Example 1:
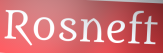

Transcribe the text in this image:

Rosneft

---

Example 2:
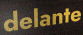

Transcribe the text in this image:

delante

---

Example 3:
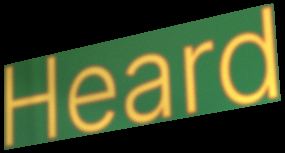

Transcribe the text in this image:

Heard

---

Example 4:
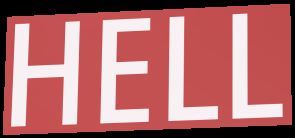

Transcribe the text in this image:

HELL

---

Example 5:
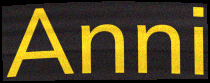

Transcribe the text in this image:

Anni